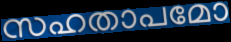
സഹതാപമോ